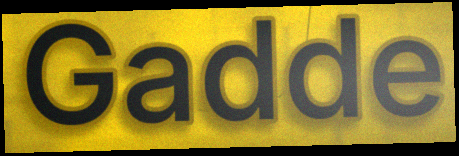
Gadde